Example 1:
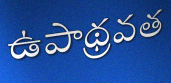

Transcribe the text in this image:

ఉపాథ్రవత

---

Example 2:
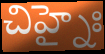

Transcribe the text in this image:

చిహ్నైః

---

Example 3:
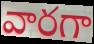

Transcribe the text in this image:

వారగా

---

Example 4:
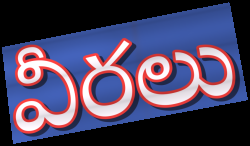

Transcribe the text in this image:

వీరలు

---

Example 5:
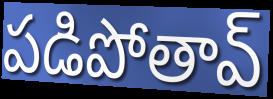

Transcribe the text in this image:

పడిపోతావ్